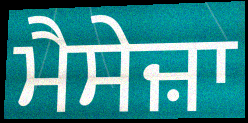
ਮੈਸੇਜ਼ਾ